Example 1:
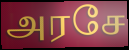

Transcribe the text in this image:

அரசே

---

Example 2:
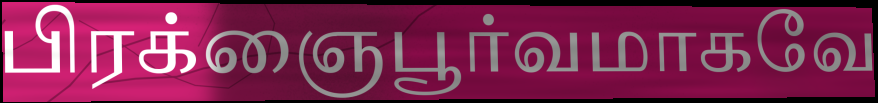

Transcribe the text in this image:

பிரக்ஞைபூர்வமாகவே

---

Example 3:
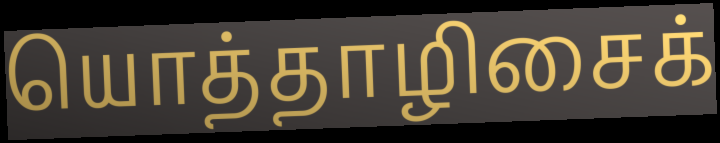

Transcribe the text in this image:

யொத்தாழிசைக்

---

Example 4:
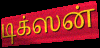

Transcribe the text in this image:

டிக்ஸன்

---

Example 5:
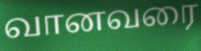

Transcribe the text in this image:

வானவரை